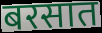
बरसात